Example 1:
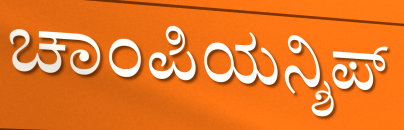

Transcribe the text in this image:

ಚಾಂಪಿಯನ್ಶಿಪ್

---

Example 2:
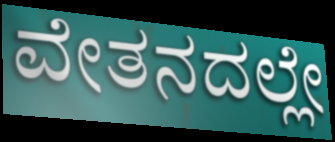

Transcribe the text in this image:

ವೇತನದಲ್ಲೇ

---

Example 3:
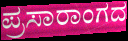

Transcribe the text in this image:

ಪ್ರಸಾರಾಂಗದ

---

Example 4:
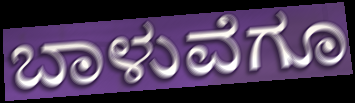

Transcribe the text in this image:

ಬಾಳುವೆಗೂ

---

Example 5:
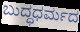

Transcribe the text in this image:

ಬುದ್ಧಧರ್ಮದ